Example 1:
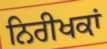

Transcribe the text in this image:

ਨਿਰੀਖਕਾਂ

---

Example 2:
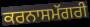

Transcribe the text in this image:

ਕਰਨਾਸਮੱਗਰੀ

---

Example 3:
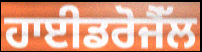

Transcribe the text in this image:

ਹਾਈਡਰੋਜੈੱਲ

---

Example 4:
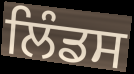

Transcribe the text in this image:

ਲਿੰਡਸ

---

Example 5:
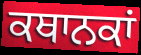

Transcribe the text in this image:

ਕਥਾਨਕਾਂ